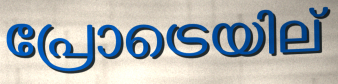
പ്രോട്രെയില്